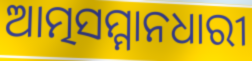
ଆତ୍ମସମ୍ମାନଧାରୀ